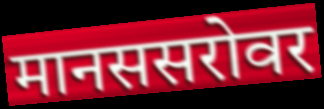
मानससरोवर